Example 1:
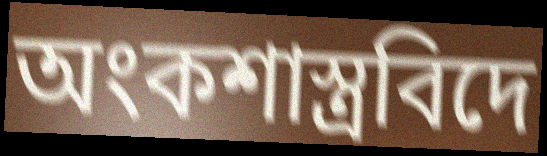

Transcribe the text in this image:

অংকশাস্ত্ৰবিদে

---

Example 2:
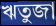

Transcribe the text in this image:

ঋতুজা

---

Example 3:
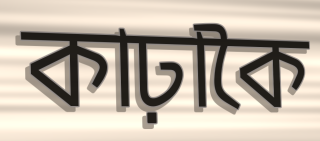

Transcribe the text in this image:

কাঢ়াকৈ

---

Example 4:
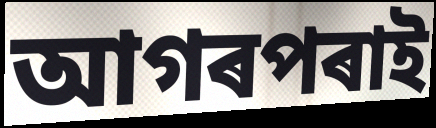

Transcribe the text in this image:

আগৰপৰাই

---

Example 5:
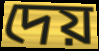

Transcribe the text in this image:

দেয়